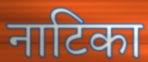
नाटिका